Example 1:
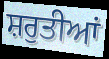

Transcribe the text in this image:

ਸ਼ਰੁਤੀਆਂ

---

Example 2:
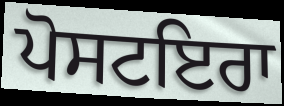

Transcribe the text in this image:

ਪੋਸਟਇਰਾ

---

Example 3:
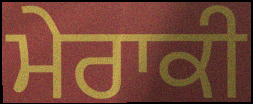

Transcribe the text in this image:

ਮੇਰਾਕੀ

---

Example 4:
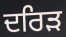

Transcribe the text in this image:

ਦਰਿੜ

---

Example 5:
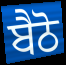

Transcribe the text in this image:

ਬੈਠੋ